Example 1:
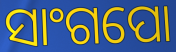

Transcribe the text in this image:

ସାଂଗପୋ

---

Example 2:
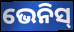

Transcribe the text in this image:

ଭେନିସ୍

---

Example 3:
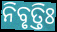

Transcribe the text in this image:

ନିବୃତ୍ତିଃ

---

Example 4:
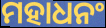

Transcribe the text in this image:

ମହାଧନଂ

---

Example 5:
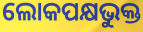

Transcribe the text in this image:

ଲୋକପକ୍ଷଭୁକ୍ତ